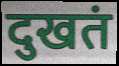
दुखतं